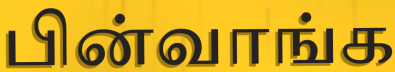
பின்வாங்க